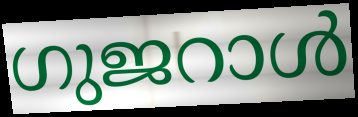
ഗുജറാൾ